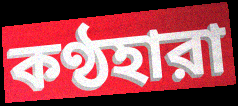
কণ্ঠহারা